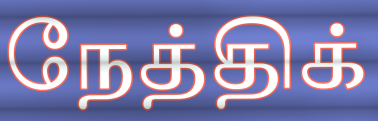
நேத்திக்